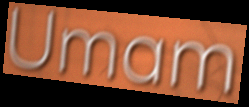
Umam